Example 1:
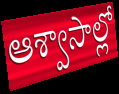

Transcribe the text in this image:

ఆశ్వాసాల్లో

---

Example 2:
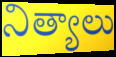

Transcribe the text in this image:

నిత్యాలు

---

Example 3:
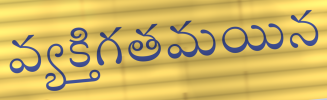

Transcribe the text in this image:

వ్యక్తిగతమయిన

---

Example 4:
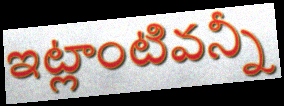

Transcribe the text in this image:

ఇట్లాంటివన్నీ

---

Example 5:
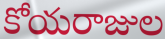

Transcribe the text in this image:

కోయరాజుల